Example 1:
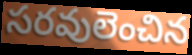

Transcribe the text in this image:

సరవులెంచిన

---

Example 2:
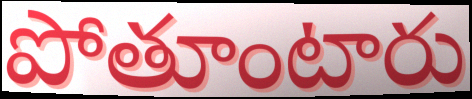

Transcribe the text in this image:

పోతూంటారు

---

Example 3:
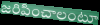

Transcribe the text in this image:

జరిపించాలంటూ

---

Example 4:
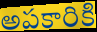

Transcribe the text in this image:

అపకారికి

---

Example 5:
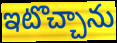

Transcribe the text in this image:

ఇటొచ్చాను